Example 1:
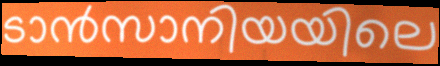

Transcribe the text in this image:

ടാൻസാനിയയിലെ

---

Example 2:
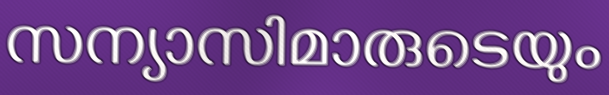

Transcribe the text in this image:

സന്യാസിമാരുടെയും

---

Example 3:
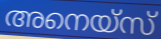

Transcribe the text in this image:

അനെയ്സ്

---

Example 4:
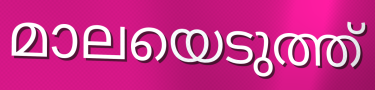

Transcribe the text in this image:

മാലയെടുത്ത്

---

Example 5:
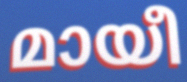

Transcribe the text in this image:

മായീ